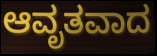
ಆವೃತವಾದ